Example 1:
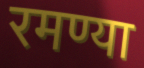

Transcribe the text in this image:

रमण्या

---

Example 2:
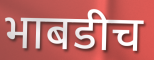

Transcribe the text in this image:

भाबडीच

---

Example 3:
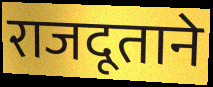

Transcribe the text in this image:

राजदूताने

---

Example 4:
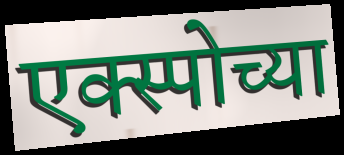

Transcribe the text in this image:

एक्स्पोच्या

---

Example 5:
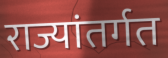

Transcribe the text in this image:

राज्यांतर्गत